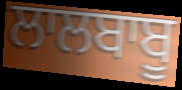
ਲਾਲਬਾਬੂ